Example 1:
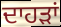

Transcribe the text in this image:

ਦਾਹੜਾਂ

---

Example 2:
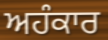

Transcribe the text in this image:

ਅਹੰਕਾਰ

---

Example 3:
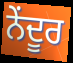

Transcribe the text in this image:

ਨੇਂਦੂਰ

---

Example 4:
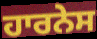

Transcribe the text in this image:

ਹਾਰਨੇਸ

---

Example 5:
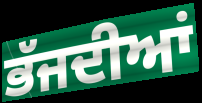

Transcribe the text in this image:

ਭੱਜਦੀਆਂ